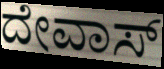
ದೇವಾಸ್